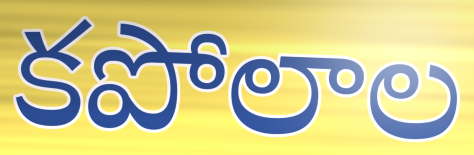
కపోలాల